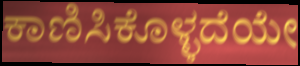
ಕಾಣಿಸಿಕೊಳ್ಳದೆಯೇ